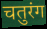
चतुरंग